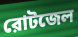
রোটজেল